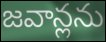
జవాన్లను